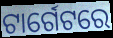
ଟାର୍ଗେଟରେ